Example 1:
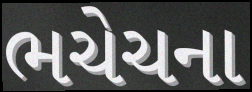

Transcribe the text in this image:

ભચેચના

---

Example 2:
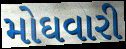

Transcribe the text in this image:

મોઘવારી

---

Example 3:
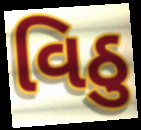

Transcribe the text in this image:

વિઠુ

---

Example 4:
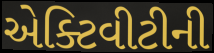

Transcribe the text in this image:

એક્ટિવીટીની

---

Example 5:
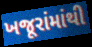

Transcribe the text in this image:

ખજૂરાંમાંથી